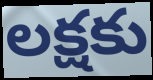
లక్షకు